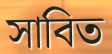
সাবিত